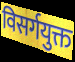
विसर्गयुक्त